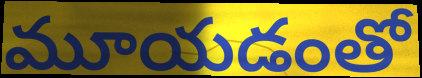
మూయడంతో